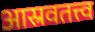
आस्रवतत्त्व